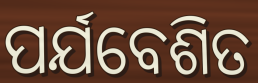
ପର୍ଯବେଶିତ